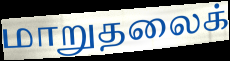
மாறுதலைக்